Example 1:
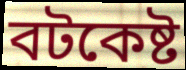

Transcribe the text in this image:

বটকেষ্ট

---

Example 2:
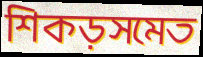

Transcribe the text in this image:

শিকড়সমেত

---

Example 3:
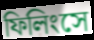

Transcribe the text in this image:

ফিলিংসে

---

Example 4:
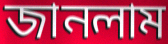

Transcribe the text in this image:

জানলাম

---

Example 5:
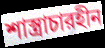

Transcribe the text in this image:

শাস্ত্রাচারহীন